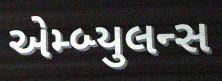
એમ્બ્યુલન્સ